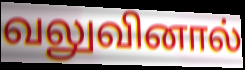
வலுவினால்